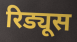
रिड्यूस